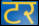
टर